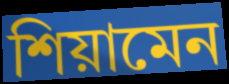
শিয়ামেন